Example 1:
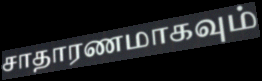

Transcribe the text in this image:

சாதாரணமாகவும்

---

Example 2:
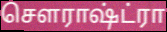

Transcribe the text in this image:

சௌராஷ்ட்ரா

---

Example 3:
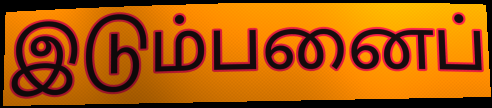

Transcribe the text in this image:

இடும்பனைப்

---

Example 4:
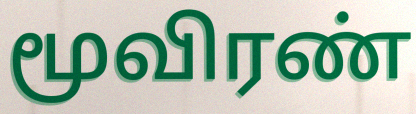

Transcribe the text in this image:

மூவிரண்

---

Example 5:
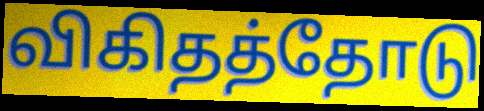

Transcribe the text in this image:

விகிதத்தோடு